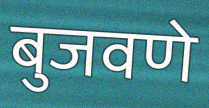
बुजवणे